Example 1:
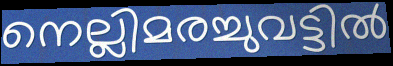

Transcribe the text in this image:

നെല്ലിമരച്ചുവട്ടിൽ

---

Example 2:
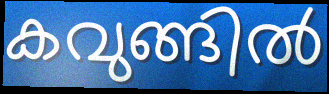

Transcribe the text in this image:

കവുങ്ങിൽ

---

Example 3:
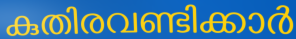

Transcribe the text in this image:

കുതിരവണ്ടിക്കാർ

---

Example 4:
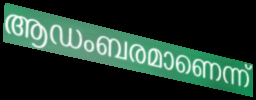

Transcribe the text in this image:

ആഡംബരമാണെന്ന്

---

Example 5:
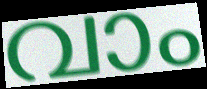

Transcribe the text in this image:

വാം